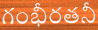
గంభీరతనీ